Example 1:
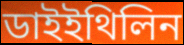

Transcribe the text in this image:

ডাইইথিলিন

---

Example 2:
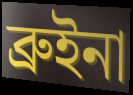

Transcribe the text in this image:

ব্রুইনা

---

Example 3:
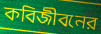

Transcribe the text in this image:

কবিজীবনের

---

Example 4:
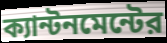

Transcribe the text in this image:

ক্যান্টনমেন্টের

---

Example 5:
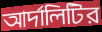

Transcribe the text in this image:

আর্দালিটির